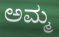
ಅಮ್ಮ